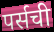
पर्सची